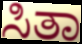
ಸಿತಾ